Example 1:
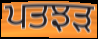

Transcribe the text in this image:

ਪਤਝੜ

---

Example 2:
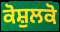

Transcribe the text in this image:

ਕੋਸ਼ੁਲਕੋ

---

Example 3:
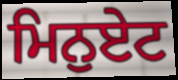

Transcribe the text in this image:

ਮਿਨੁਏਟ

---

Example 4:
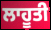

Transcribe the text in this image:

ਲਾਹੂਤੀ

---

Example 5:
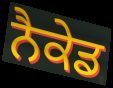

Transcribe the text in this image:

ਨੈਕੇਡ